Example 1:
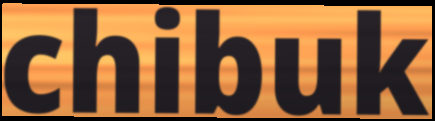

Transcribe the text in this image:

chibuk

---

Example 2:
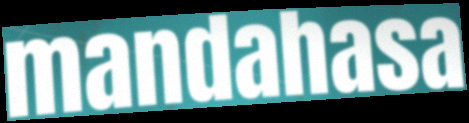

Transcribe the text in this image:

mandahasa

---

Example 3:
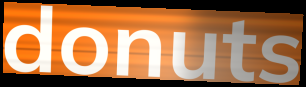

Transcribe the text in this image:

donuts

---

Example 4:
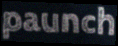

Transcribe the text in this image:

paunch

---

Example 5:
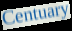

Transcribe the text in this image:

Centuary